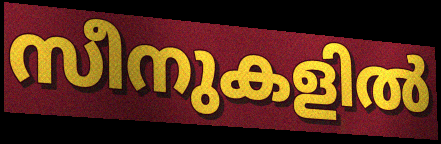
സീനുകളിൽ